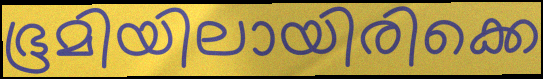
ഭൂമിയിലായിരിക്കെ